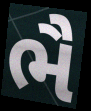
ભૈ